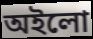
অইলো